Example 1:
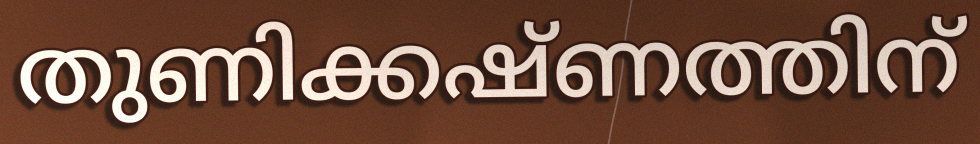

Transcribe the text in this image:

തുണിക്കഷ്ണത്തിന്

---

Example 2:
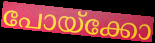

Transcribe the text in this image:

പോയ്ക്കോ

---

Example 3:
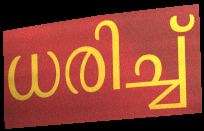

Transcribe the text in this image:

ധരിച്ച്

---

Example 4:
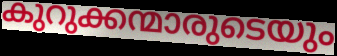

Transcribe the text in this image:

കുറുക്കന്മാരുടെയും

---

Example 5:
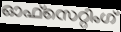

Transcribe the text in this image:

ഓഫ്സെറ്റിംഗ്